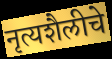
नृत्यशैलीचे